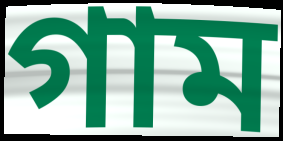
গাম